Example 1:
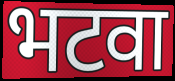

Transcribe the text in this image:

भटवा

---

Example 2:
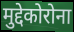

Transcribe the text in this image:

मुद्देकोरोना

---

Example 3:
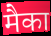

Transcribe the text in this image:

मैका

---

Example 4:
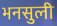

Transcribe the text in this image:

भनसुली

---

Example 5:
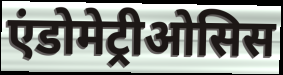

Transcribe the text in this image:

एंडोमेट्रीओसिस